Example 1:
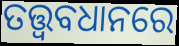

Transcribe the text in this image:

ତତ୍ତ୍ୱବଧାନରେ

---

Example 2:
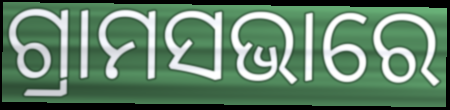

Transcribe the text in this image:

ଗ୍ରାମସଭାରେ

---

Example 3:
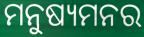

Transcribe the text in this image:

ମନୁଷ୍ୟମନର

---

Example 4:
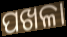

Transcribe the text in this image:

ପଖଳା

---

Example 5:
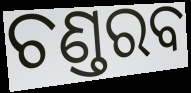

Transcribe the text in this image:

ଚଣ୍ଡରବ